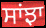
ਸਾਂਝਾ